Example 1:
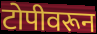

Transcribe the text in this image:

टोपीवरून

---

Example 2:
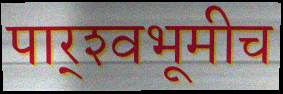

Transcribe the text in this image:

पार्श्वभूमीच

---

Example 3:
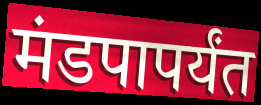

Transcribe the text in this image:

मंडपापर्यंत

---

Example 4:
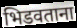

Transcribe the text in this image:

भिडवताना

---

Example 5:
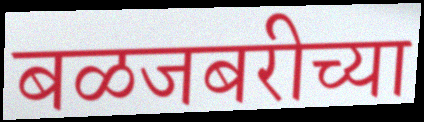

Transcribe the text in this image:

बळजबरीच्या